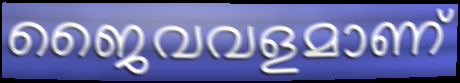
ജൈവവളമാണ്